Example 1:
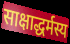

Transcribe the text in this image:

साक्षाद्धर्मस्य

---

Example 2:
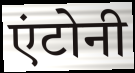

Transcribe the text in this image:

एंटोनी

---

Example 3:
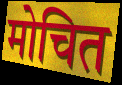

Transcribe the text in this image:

मोचित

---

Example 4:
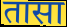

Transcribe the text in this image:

तासा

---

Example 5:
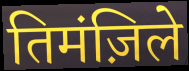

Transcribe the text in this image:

तिमंज़िले